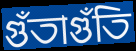
গুঁতাগুঁতি